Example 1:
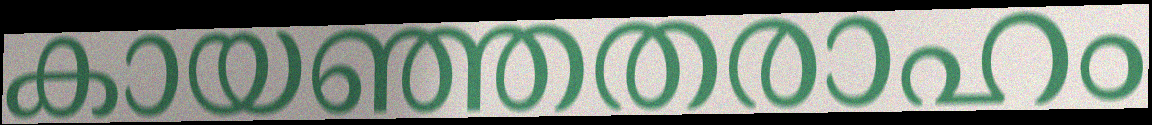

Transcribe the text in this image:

കായഞ്ഞതരാഹം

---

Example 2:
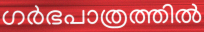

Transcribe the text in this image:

ഗർഭപാത്രത്തിൽ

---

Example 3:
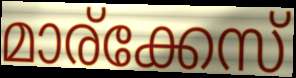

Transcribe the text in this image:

മാര്ക്കേസ്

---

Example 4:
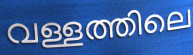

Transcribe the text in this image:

വള്ളത്തിലെ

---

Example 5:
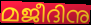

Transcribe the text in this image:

മജീദിനു